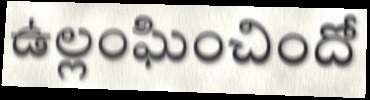
ఉల్లంఘించిందో